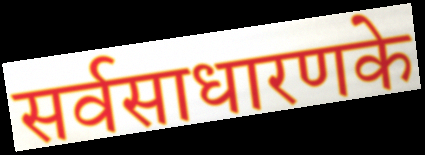
सर्वसाधारणके